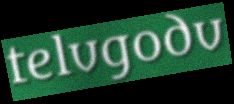
telugodu